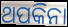
ଥପକିନା